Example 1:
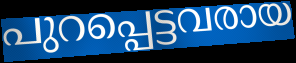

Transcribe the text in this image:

പുറപ്പെട്ടവരായ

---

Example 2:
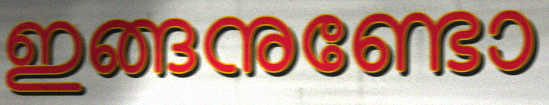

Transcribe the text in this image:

ഇങ്ങനുണ്ടോ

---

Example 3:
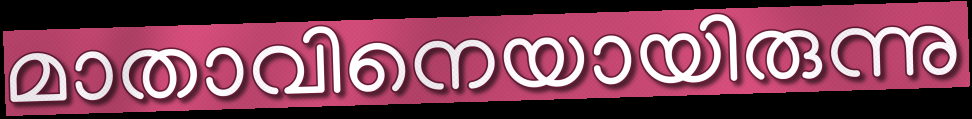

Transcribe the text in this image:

മാതാവിനെയായിരുന്നു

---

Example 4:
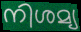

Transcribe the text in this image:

നിശമ്യ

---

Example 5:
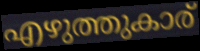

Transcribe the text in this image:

എഴുത്തുകാര്